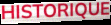
HISTORIQUE